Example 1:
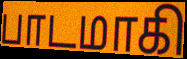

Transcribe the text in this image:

பாடமாகி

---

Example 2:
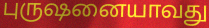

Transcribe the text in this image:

புருஷனையாவது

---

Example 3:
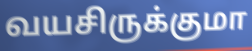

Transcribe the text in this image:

வயசிருக்குமா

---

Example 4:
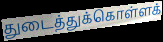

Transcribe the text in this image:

துடைத்துக்கொள்ளக்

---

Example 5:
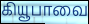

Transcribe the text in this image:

கியூபாவை